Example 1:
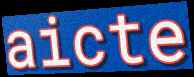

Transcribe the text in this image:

aicte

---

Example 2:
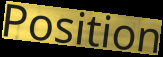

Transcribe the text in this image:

Position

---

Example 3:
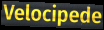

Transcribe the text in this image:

Velocipede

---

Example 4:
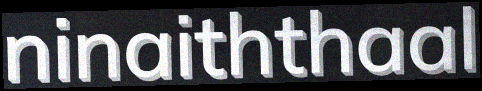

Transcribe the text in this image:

ninaiththaal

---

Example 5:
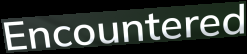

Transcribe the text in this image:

Encountered